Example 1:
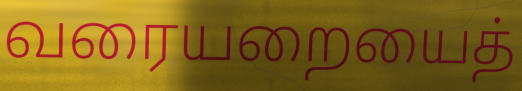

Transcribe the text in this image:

வரையறையைத்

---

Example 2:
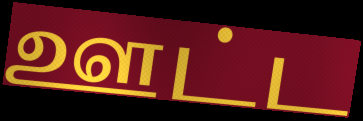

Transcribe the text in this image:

ஊட்ட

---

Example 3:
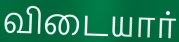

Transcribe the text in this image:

விடையார்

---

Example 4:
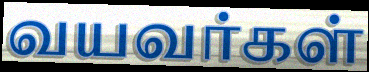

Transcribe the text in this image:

வயவர்கள்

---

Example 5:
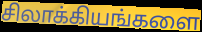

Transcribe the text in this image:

சிலாக்கியங்களை